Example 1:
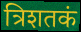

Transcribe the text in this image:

त्रिशतकं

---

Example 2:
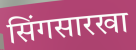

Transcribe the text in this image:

सिंगसारखा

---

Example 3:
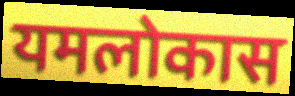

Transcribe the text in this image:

यमलोकास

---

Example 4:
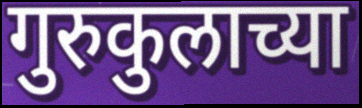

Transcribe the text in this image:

गुरुकुलाच्या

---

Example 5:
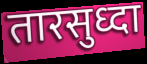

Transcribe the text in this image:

तारसुध्दा